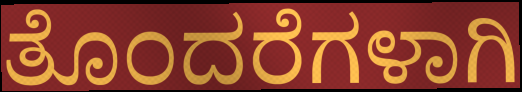
ತೊಂದರೆಗಳಾಗಿ